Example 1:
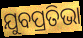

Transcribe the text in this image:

ଯୁବପ୍ରତିଭା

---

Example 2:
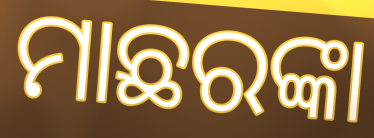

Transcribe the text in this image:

ମାଛରଙ୍କା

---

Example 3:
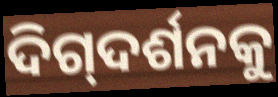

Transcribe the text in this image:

ଦିଗ୍‌ଦର୍ଶନକୁ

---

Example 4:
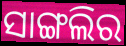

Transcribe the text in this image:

ସାଙ୍ଗଲିର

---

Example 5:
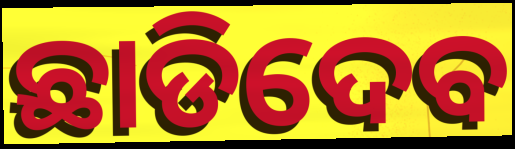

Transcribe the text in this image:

ଛାଡିଦେବ